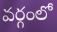
వర్గంలో